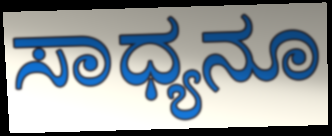
ಸಾಧ್ಯನೂ